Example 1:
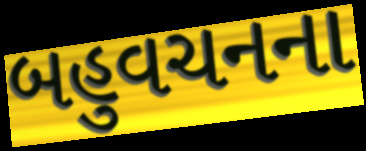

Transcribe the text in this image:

બહુવચનના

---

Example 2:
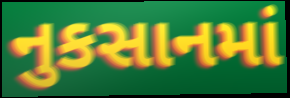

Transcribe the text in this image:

નુકસાનમાં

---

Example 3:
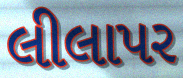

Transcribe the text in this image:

લીલાપર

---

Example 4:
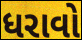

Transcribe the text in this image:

ધરાવો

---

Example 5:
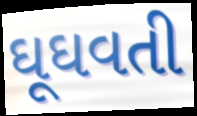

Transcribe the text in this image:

ઘૂઘવતી